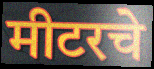
मीटरचे